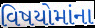
વિષયોમાંના